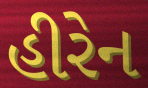
હીરેન